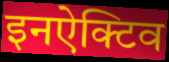
इनऐक्टिव